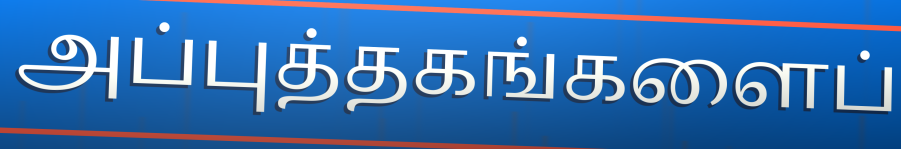
அப்புத்தகங்களைப்